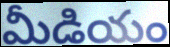
మీడియం